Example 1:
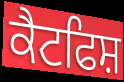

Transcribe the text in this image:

ਕੈਟਫਿਸ਼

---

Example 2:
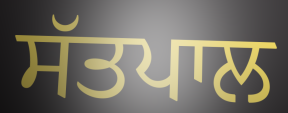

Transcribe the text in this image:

ਸੱਤਪਾਲ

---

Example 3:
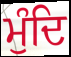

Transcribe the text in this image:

ਮੁੰਦਿ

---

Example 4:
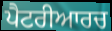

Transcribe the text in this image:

ਪੈਟਰੀਆਰਚ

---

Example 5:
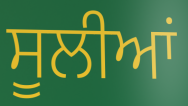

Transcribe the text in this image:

ਸੂਲੀਆਂ